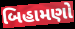
બિહામણો